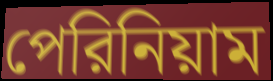
পেরিনিয়াম